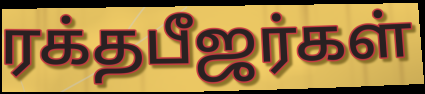
ரக்தபீஜர்கள்